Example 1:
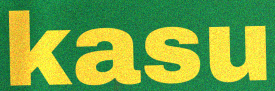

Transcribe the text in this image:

kasu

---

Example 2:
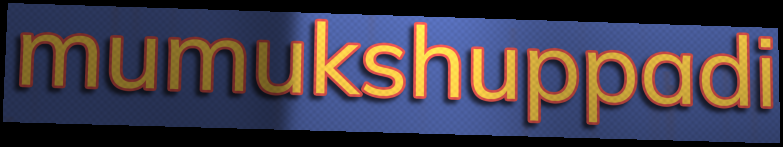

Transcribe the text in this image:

mumukshuppadi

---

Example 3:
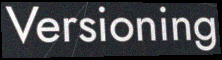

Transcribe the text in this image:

Versioning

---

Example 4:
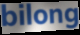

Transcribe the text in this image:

bilong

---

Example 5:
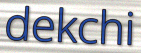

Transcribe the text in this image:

dekchi